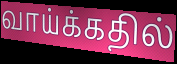
வாய்க்கதில்